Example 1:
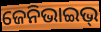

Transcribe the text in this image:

ଜେନିଭାଇଭ୍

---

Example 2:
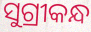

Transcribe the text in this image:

ସୁଗ୍ରୀକନ୍ଧ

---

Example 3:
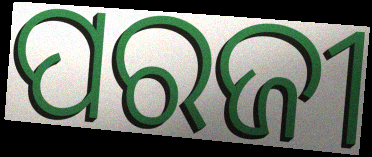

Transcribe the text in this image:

ପରଜୀ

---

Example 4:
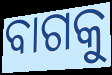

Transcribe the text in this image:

ବାଗକୁ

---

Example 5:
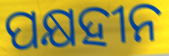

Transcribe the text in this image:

ପକ୍ଷହୀନ